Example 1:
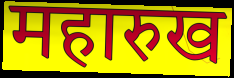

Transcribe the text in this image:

महारुख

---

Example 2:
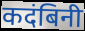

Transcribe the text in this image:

कदंबिनी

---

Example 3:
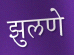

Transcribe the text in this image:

झुलणे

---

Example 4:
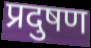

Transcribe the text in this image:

प्रदुषण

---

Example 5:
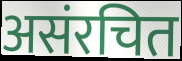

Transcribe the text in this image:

असंरचित